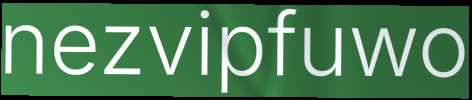
nezvipfuwo